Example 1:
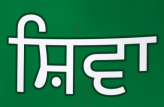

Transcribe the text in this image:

ਸ਼ਿਵਾ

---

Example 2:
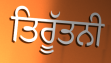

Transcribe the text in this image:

ਤਿਰੂੱਤਨੀ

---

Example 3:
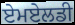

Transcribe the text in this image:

ਏਮਏਲਡੀ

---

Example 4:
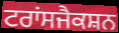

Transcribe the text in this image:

ਟਰਾਂਸਜੈਕਸ਼ਨ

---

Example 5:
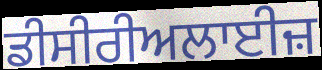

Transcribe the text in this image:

ਡੀਸੀਰੀਅਲਾਈਜ਼